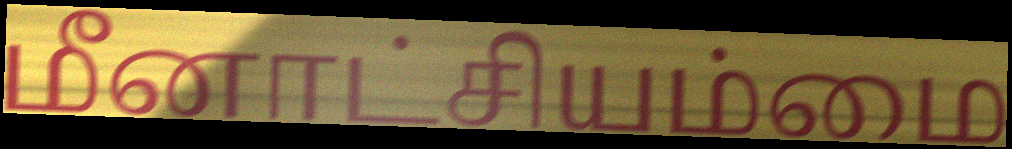
மீனாட்சியம்மை